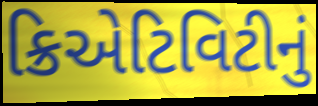
ક્રિએટિવિટીનું